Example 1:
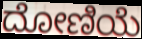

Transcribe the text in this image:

ದೋಣಿಯೆ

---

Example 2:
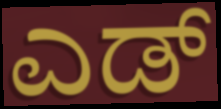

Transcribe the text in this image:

ಎಡ್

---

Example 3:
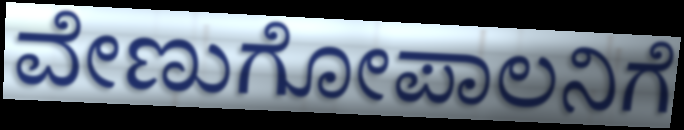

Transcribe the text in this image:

ವೇಣುಗೋಪಾಲನಿಗೆ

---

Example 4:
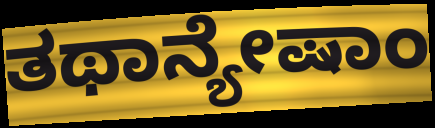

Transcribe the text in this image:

ತಥಾನ್ಯೇಷಾಂ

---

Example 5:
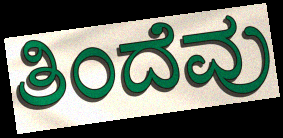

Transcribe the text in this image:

ತಿಂದೆವು